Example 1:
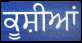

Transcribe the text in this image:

ਕੂਸ਼ੀਆਂ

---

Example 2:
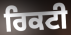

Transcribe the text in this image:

ਰਿਕਟੀ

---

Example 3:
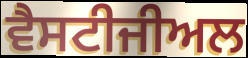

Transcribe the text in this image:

ਵੈਸਟੀਜੀਅਲ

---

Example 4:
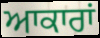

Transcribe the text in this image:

ਆਕਾਰਾਂ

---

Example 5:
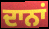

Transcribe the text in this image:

ਦਾਨਾਂ